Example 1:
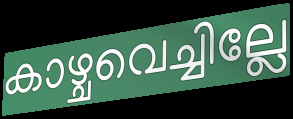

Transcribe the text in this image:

കാഴ്ചവെച്ചില്ലേ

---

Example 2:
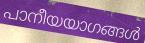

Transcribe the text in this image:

പാനീയയാഗങ്ങൾ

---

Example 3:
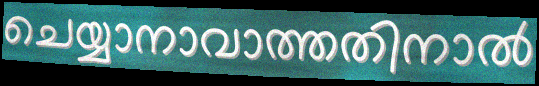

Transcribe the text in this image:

ചെയ്യാനാവാത്തതിനാൽ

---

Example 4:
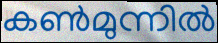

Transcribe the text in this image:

കൺമുന്നിൽ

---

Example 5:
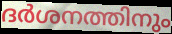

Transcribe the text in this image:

ദർശനത്തിനും